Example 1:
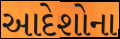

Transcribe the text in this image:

આદેશોના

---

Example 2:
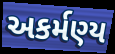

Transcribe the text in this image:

અકર્મણ્ય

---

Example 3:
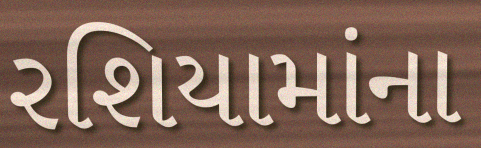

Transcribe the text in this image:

રશિયામાંના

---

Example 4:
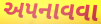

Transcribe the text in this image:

અપનાવવા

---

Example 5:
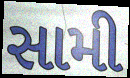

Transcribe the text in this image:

સામી